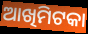
ଆଖିମିଟକା